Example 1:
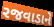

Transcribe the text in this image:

રજવાડાને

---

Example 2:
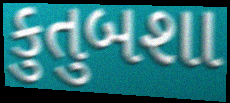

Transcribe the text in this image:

કુતુબશા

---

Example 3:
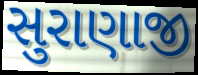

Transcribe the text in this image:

સુરાણાજી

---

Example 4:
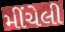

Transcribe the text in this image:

મીંચેલી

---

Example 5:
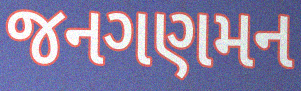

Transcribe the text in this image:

જનગણમન